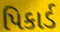
પિકાર્ડ